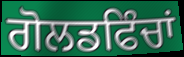
ਗੋਲਡਫਿੰਚਾਂ